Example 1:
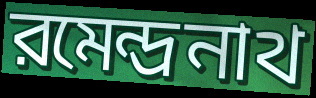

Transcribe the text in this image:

রমেন্দ্রনাথ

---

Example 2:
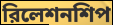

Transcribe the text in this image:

রিলেশনশিপ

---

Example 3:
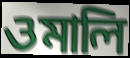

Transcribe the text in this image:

ওমালি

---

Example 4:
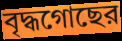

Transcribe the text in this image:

বৃদ্ধগোছের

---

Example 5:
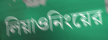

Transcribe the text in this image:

লিয়াওনিংয়ের